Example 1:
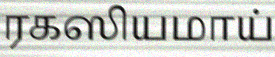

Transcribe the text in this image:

ரகஸியமாய்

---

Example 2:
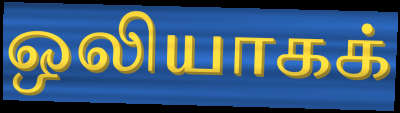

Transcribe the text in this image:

ஒலியாகக்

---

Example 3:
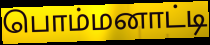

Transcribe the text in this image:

பொம்மனாட்டி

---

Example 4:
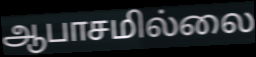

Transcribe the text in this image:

ஆபாசமில்லை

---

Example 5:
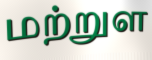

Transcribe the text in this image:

மற்றுள